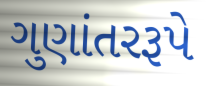
ગુણાંતરરૂપે